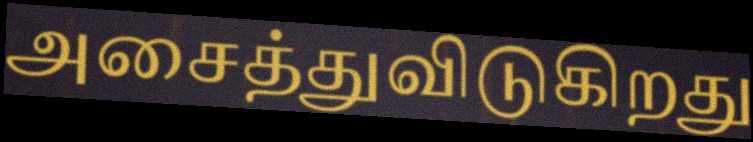
அசைத்துவிடுகிறது